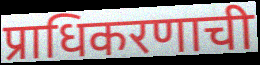
प्राधिकरणाची